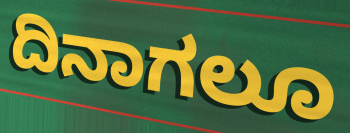
ದಿನಾಗಲೂ